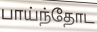
பாய்ந்தோட